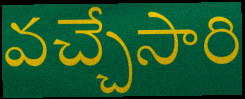
వచ్చేసారి